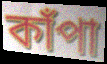
কাঁপা